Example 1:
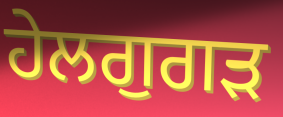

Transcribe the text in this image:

ਹੇਲਗੁਗੜ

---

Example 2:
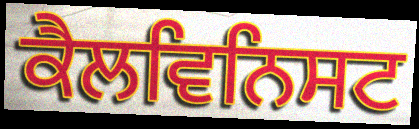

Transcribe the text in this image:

ਕੈਲਵਿਨਿਸਟ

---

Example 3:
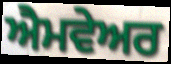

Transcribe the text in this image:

ਐਮਵੇਅਰ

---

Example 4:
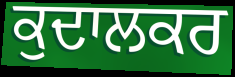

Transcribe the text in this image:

ਕੁਦਾਲਕਰ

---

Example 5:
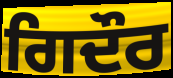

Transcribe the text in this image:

ਗਿਦੌਰ